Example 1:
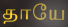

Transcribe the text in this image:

தாயே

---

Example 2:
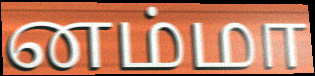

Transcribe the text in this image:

னம்மா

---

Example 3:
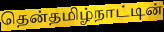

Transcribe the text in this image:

தென்தமிழ்நாட்டின்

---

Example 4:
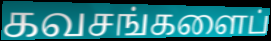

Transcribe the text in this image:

கவசங்களைப்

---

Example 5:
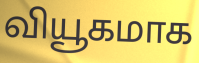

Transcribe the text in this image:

வியூகமாக